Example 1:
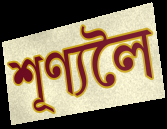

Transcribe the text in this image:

শূণ্যলৈ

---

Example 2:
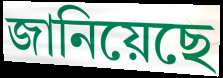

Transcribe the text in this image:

জানিয়েছে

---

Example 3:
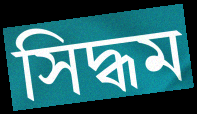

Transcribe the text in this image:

সিদ্ধম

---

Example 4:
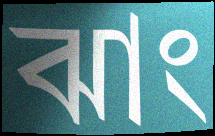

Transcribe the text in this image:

ঝাং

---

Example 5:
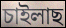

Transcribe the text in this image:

চাইলাছ